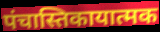
पंचास्तिकायात्मक